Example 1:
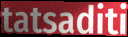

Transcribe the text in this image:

tatsaditi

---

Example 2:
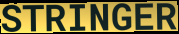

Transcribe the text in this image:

STRINGER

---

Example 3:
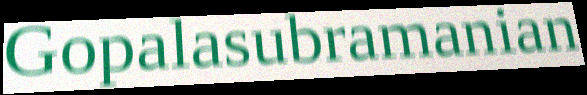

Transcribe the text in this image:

Gopalasubramanian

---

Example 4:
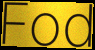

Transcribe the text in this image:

Fod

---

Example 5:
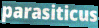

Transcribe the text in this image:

parasiticus